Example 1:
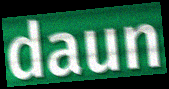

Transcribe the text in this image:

daun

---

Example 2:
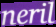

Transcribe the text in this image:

neril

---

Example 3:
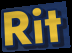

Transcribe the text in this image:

Rit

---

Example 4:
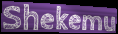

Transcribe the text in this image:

Shekemu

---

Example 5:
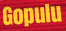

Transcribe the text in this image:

Gopulu